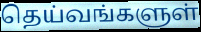
தெய்வங்களுள்